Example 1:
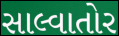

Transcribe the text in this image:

સાલ્વાતોર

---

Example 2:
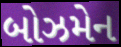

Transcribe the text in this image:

બોઝમેન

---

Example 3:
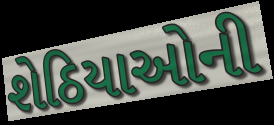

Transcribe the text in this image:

શેઠિયાઓની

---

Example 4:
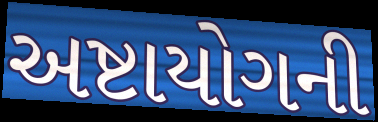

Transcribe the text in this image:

અષ્ટાયોગની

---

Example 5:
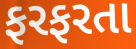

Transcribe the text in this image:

ફરફરતા